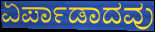
ಏರ್ಪಾಡಾದವು